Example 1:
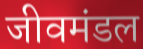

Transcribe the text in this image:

जीवमंडल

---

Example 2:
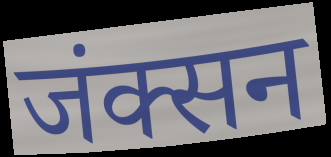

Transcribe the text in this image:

जंक्सन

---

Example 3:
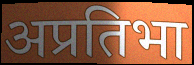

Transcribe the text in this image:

अप्रतिभा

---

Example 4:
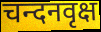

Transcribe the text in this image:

चन्दनवृक्ष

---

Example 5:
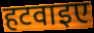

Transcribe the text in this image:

हटवाइए